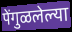
पेंगुळलेल्या